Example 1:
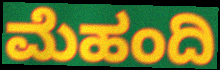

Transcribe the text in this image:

ಮೆಹಂದಿ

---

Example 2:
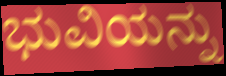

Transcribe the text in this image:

ಭುವಿಯನ್ನು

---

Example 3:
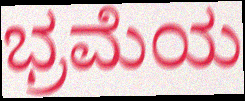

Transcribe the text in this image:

ಭ್ರಮೆಯ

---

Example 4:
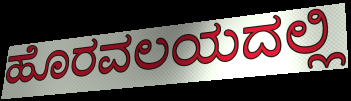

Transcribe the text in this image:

ಹೊರವಲಯದಲ್ಲಿ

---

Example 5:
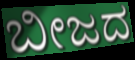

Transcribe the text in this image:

ಬೀಜದ